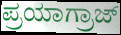
ಪ್ರಯಾಗ್ರಾಜ್